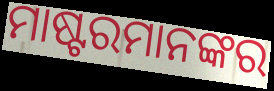
ମାଷ୍ଟରମାନଙ୍କର